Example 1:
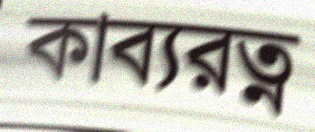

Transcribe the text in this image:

কাব্যরত্ন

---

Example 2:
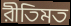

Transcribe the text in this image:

রীতিমত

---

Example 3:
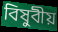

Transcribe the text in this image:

বিষুবীয়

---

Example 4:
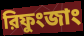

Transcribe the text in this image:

রিফুংজাং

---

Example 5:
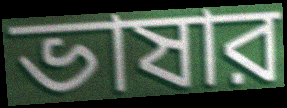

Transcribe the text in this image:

ভাষার